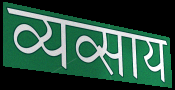
व्यव्साय